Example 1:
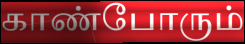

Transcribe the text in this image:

காண்போரும்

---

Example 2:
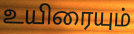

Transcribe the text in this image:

உயிரையும்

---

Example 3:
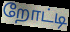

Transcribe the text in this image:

றோட்டி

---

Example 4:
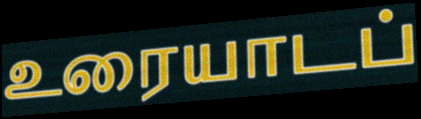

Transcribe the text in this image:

உரையாடப்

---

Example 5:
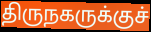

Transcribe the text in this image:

திருநகருக்குச்